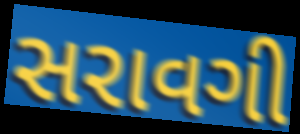
સરાવગી